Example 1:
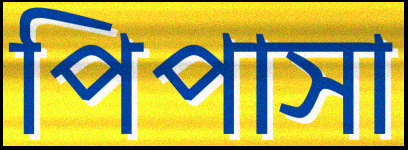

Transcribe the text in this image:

পিপাসা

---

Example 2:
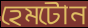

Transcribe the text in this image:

হেমটোন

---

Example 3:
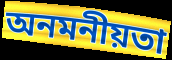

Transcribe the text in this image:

অনমনীয়তা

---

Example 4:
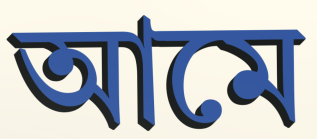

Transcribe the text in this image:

আমে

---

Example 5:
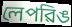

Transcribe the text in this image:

লেপৱিঙ